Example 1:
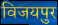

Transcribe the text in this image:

विजयपुर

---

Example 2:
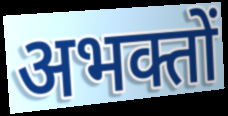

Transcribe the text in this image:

अभक्तों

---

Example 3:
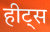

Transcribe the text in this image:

हीट्स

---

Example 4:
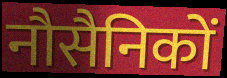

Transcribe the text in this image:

नौसैनिकों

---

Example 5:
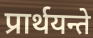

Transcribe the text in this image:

प्रार्थयन्ते